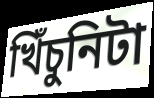
খিঁচুনিটা